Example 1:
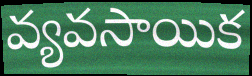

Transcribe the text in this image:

వ్యవసాయిక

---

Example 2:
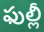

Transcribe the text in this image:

ఫుల్లీ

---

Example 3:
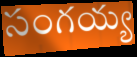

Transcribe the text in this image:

సంగయ్య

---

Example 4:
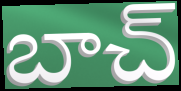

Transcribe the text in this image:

బాచ్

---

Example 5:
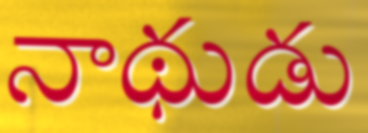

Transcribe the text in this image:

నాథుడు